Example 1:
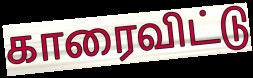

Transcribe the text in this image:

காரைவிட்டு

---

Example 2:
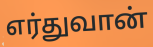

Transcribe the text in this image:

எர்துவான்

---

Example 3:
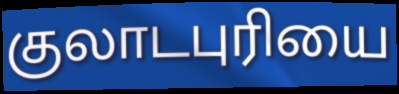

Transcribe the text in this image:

குலாடபுரியை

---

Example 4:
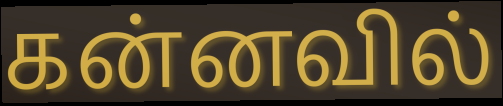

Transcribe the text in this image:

கன்னவில்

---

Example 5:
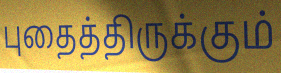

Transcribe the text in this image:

புதைத்திருக்கும்